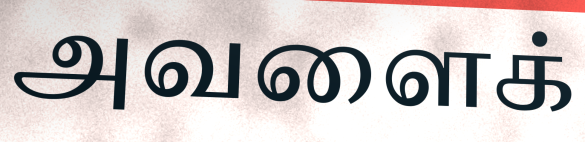
அவளைக்